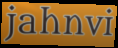
jahnvi